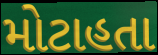
મોટાહતા